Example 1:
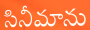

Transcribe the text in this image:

సినీమాను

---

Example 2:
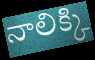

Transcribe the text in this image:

నాలిక్కి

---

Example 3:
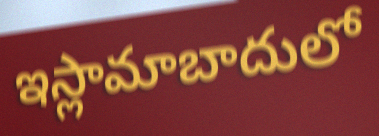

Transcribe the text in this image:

ఇస్లామాబాదులో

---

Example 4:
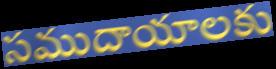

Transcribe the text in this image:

సముదాయాలకు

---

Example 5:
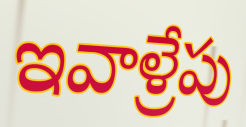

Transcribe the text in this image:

ఇవాళ్రేపు